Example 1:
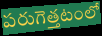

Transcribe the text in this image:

పరుగెత్తటంలో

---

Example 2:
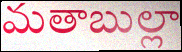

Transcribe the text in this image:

మతాబుల్లా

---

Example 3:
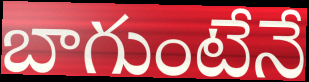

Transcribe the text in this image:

బాగుంటేనే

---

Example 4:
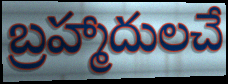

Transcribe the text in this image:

బ్రహ్మాదులచే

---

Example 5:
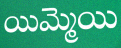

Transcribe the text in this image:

యిమ్మెయి